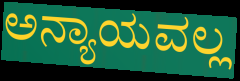
ಅನ್ಯಾಯವಲ್ಲ